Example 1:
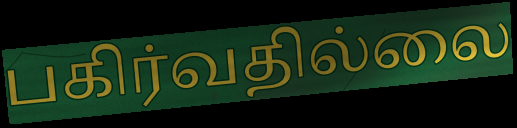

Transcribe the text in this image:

பகிர்வதில்லை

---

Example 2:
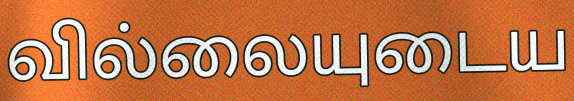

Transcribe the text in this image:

வில்லையுடைய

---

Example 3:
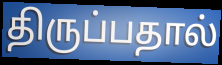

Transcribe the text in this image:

திருப்பதால்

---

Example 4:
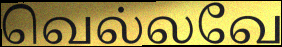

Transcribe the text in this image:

வெல்லவே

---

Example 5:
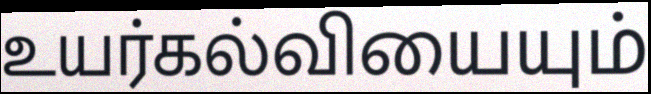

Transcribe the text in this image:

உயர்கல்வியையும்